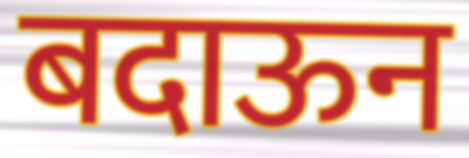
बदाऊन